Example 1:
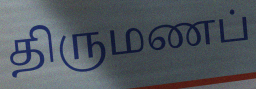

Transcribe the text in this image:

திருமணப்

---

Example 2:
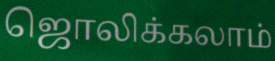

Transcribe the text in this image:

ஜொலிக்கலாம்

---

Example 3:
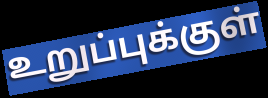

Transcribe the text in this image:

உறுப்புக்குள்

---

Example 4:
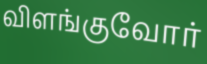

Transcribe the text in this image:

விளங்குவோர்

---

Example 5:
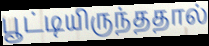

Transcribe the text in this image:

பூட்டியிருந்ததால்